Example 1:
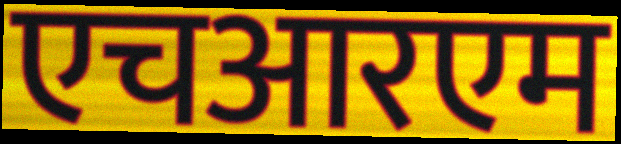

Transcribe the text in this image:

एचआरएम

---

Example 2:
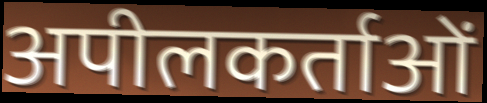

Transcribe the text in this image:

अपीलकर्ताओं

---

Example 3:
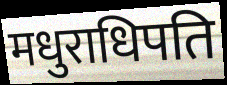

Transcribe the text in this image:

मधुराधिपति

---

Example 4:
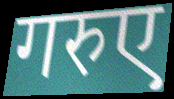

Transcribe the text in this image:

गरुए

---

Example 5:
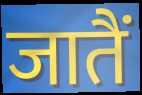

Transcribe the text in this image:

जातैं